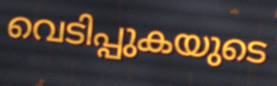
വെടിപ്പുകയുടെ